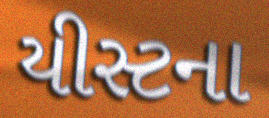
યીસ્ટના